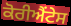
ਕੋਰੀਐਂਟੇਸ